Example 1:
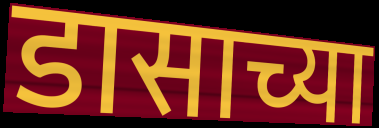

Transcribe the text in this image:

डासाच्या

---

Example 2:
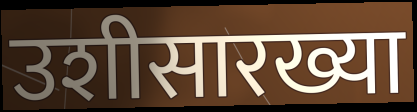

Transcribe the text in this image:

उशीसारख्या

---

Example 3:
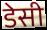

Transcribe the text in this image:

डेसी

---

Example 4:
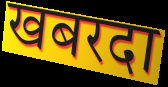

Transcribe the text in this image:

खबरदा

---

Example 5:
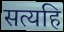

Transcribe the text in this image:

सत्यहि